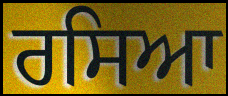
ਰਸਿਆ